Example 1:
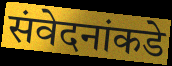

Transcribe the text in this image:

संवेदनांकडे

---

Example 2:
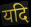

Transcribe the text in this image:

यदि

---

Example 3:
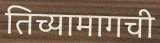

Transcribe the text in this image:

तिच्यामागची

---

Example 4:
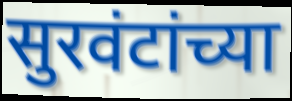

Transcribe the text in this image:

सुरवंटांच्या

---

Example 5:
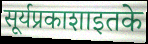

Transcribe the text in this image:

सूर्यप्रकाशाइतके